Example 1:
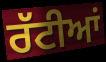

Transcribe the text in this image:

ਰੱਟੀਆਂ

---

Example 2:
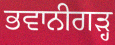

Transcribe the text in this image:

ਭਵਾਨੀਗੜ੍ਹ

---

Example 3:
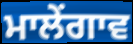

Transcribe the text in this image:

ਮਾਲੇਂਗਾਵ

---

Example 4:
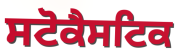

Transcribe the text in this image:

ਸਟੋਕੈਸਟਿਕ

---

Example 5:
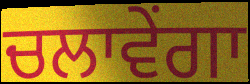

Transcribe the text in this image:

ਚਲਾਵੇਂਗਾ